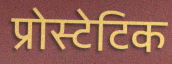
प्रोस्टेटिक